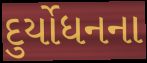
દુર્યોધનના